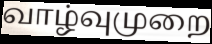
வாழ்வுமுறை